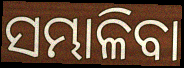
ସମ୍ଭାଳିବା